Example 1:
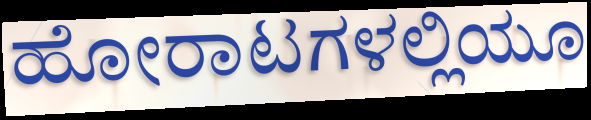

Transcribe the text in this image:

ಹೋರಾಟಗಳಲ್ಲಿಯೂ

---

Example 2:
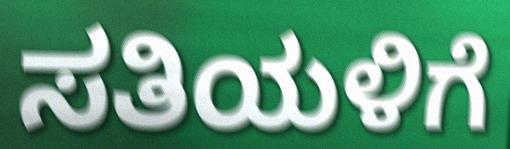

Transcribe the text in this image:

ಸತಿಯಳಿಗೆ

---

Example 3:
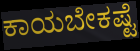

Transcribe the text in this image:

ಕಾಯಬೇಕಷ್ಟೆ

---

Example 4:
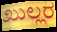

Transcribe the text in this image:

ಖುಲ್ಲರ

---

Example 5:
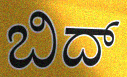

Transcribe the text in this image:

ಬಿದ್